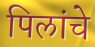
पिलांचे